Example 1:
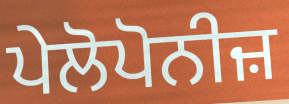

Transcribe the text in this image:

ਪੇਲੋਪੋਨੀਜ਼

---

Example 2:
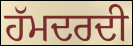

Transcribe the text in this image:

ਹੱਮਦਰਦੀ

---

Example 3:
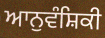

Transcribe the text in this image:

ਆਨੁਵੰਸ਼ਿਕੀ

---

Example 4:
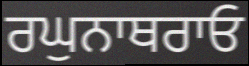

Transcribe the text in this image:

ਰਘੁਨਾਥਰਾਓ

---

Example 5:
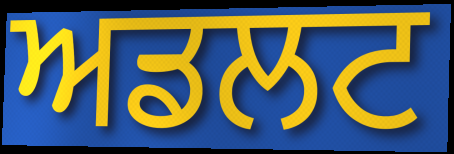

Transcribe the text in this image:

ਅਡਲਟ